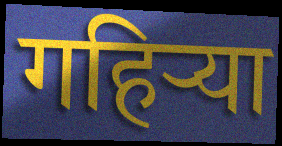
गहिऱ्या